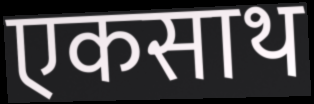
एकसाथ